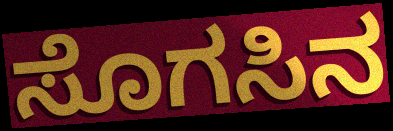
ಸೊಗಸಿನ